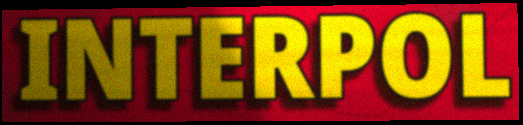
INTERPOL